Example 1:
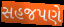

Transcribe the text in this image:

સહજપણે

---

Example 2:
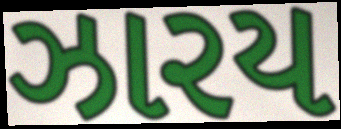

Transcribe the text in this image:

ઝારય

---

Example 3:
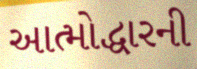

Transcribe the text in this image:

આત્મોદ્ધારની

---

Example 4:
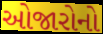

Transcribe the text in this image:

ઓજારોનો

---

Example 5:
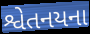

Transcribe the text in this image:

શ્વેતનયના